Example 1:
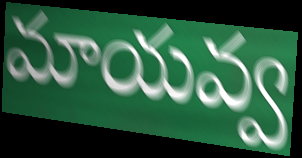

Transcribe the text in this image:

మాయవ్వ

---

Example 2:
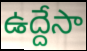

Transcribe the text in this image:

ఉద్దేసా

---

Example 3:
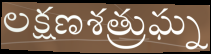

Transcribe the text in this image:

లక్షణశత్రుఘ్న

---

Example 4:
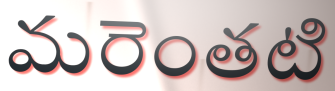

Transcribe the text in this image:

మరెంతటి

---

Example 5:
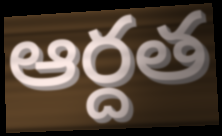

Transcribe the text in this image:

ఆర్దత